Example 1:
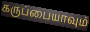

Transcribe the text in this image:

கருப்பையாவும்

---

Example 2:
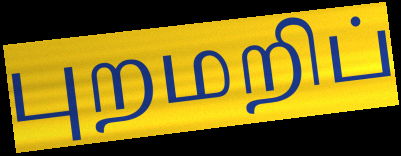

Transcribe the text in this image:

புறமறிப்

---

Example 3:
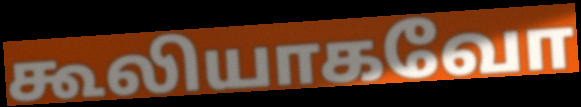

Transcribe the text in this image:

கூலியாகவோ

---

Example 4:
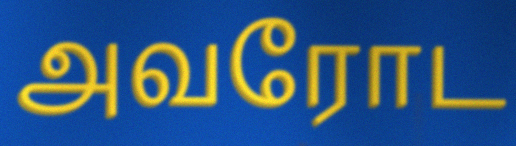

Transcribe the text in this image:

அவரோட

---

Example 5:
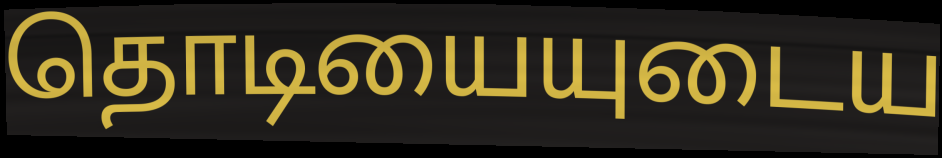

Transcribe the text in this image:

தொடியையுடைய